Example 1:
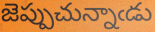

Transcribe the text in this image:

జెప్పుచున్నాఁడు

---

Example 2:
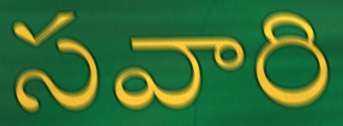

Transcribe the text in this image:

సవారి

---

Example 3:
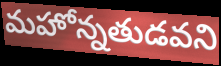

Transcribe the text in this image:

మహోన్నతుడవని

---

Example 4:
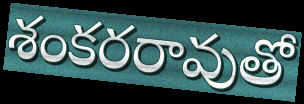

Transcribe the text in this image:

శంకరరావుతో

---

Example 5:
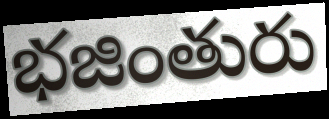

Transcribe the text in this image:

భజింతురు